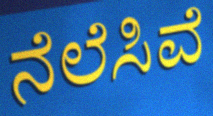
ನೆಲೆಸಿವೆ